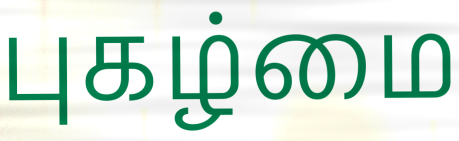
புகழ்மை